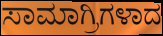
ಸಾಮಾಗ್ರಿಗಳಾದ